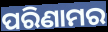
ପରିଣାମର